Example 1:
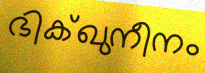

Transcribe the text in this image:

ഭിക്ഖുനീനം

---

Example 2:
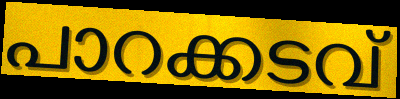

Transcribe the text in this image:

പാറക്കടവ്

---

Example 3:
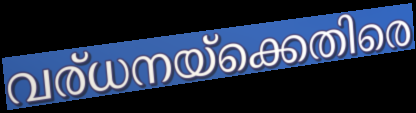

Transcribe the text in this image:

വര്ധനയ്ക്കെതിരെ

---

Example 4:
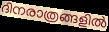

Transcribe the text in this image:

ദിനരാത്രങ്ങളിൽ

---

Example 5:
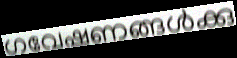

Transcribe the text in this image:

ഗവേഷണങ്ങൾക്കു